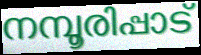
നമ്പൂരിപ്പാട്